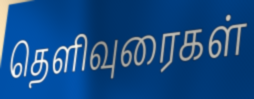
தெளிவுரைகள்